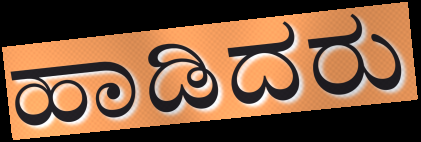
ಹಾಡಿದರು